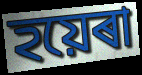
হয়েৰা